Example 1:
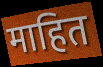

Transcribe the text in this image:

माहित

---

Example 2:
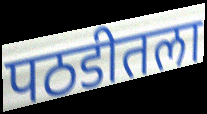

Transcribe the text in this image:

पठडीतला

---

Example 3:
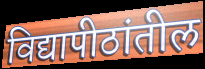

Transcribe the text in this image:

विद्यापीठांतील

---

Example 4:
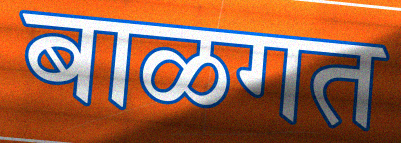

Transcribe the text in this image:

बाळगत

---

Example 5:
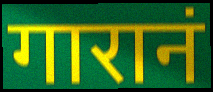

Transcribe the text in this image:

गारानं